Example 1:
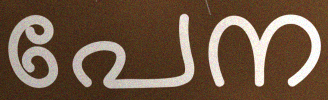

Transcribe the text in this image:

പേന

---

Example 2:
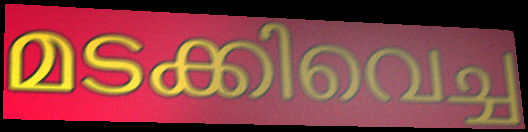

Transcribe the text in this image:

മടക്കിവെച്ച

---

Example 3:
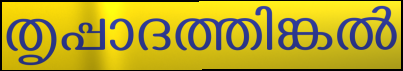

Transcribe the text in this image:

തൃപ്പാദത്തിങ്കൽ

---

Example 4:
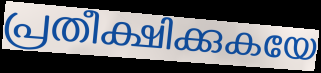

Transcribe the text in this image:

പ്രതീക്ഷിക്കുകയേ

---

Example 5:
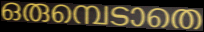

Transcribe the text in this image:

ഒരുമ്പെടാതെ